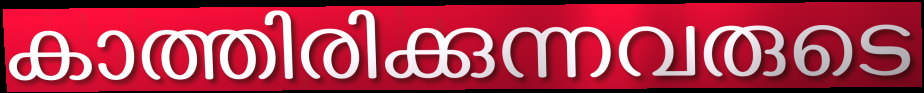
കാത്തിരിക്കുന്നവരുടെ